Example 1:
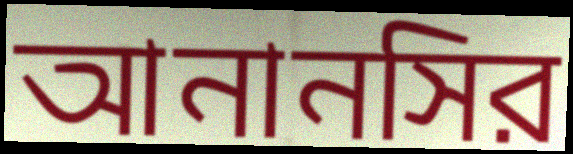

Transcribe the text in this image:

আনানসির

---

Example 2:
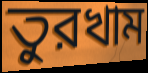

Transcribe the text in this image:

তুরখাম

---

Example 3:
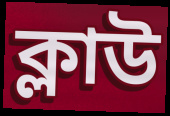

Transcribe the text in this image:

ক্লাউ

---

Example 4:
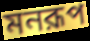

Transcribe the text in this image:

মনরূপ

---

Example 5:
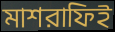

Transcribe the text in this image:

মাশরাফিই